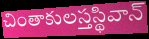
చింతాకులస్తస్థివాన్